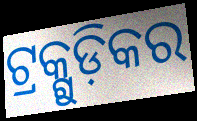
ଟ୍ରକ୍ଗୁଡ଼ିକର